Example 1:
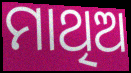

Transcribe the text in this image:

ମାଥିଅ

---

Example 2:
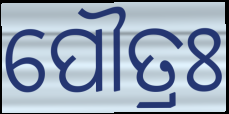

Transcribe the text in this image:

ପୌତ୍ରଃ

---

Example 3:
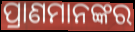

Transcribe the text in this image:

ପ୍ରାଣମାନଙ୍କର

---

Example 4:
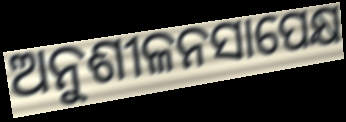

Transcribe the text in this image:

ଅନୁଶୀଳନସାପେକ୍ଷ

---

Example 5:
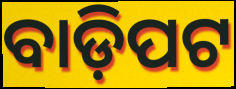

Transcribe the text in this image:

ବାଡ଼ିପଟ